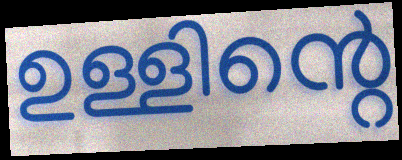
ഉള്ളിന്റെ